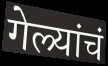
गेल्यांचं